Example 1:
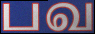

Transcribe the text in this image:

பவ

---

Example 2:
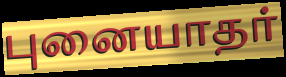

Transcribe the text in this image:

புனையாதர்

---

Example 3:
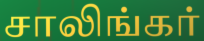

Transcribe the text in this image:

சாலிங்கர்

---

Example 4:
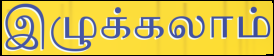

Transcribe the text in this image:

இழுக்கலாம்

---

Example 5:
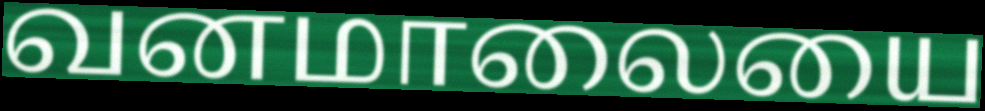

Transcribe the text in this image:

வனமாலையை